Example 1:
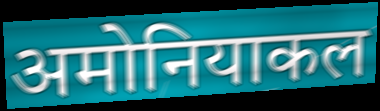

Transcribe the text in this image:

अमोनियाकल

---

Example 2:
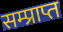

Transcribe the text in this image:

सम्प्राप्त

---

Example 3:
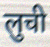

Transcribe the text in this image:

लुची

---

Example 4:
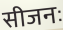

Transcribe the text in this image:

सीजनः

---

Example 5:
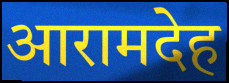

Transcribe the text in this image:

आरामदेह